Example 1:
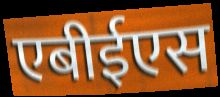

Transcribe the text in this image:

एबीईएस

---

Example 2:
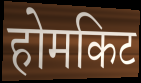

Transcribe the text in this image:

होमकिट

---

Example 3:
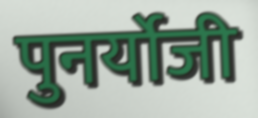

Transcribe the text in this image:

पुनर्योजी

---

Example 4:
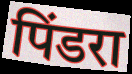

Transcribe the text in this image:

पिंडरा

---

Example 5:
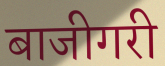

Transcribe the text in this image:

बाजीगरी